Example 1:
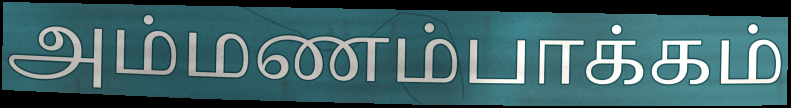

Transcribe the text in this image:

அம்மணம்பாக்கம்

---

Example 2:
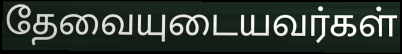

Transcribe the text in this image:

தேவையுடையவர்கள்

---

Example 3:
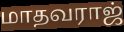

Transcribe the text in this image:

மாதவராஜ்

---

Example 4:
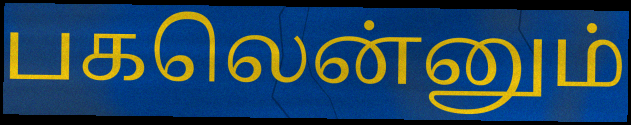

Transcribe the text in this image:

பகலென்னும்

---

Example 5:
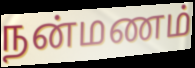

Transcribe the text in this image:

நன்மணம்